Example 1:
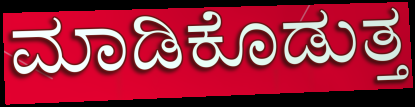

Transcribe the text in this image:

ಮಾಡಿಕೊಡುತ್ತ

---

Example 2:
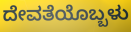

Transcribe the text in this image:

ದೇವತೆಯೊಬ್ಬಳು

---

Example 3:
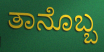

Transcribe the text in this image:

ತಾನೊಬ್ಬ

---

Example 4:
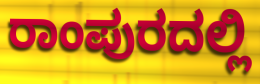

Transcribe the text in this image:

ರಾಂಪುರದಲ್ಲಿ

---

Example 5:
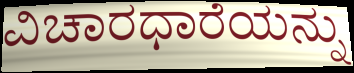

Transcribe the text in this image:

ವಿಚಾರಧಾರೆಯನ್ನು